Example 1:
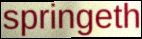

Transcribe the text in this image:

springeth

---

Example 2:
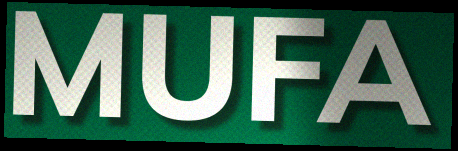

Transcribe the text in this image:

MUFA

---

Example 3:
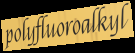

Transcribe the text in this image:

polyfluoroalkyl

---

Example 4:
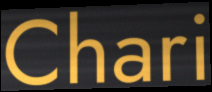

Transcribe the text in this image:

Chari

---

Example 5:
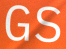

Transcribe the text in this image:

GS